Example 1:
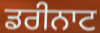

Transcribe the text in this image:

ਡਰੀਨਾਟ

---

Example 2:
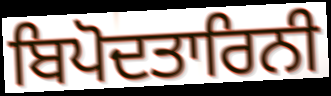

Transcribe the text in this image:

ਬਿਪੋਦਤਾਰਿਨੀ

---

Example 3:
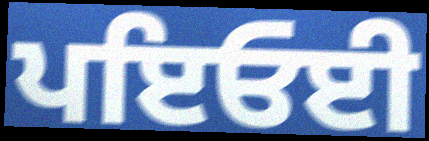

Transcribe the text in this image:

ਪਇਓਈ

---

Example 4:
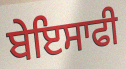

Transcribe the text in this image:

ਬੇਇਸਾਫੀ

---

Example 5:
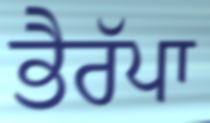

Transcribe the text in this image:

ਭੈਰੱਪਾ